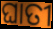
ଘାତୀ